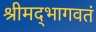
श्रीमद्‌भागवतं